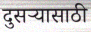
दुसऱ्यासाठी